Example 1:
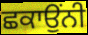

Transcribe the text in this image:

ਛਕਾਉਂਨੀ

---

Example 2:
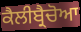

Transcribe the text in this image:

ਕੈਲੀਬ੍ਰੈਚੋਆ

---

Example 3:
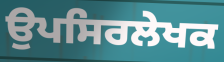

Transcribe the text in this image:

ਉਪਸਿਰਲੇਖਕ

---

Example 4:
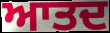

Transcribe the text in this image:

ਆਤਦ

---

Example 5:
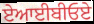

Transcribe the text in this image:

ਏਆਈਬੀਓਏ